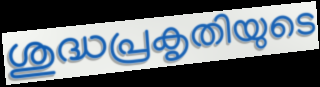
ശുദ്ധപ്രകൃതിയുടെ